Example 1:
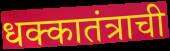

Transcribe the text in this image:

धक्कातंत्राची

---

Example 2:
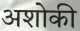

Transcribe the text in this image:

अशोकी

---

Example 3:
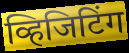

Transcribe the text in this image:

व्हिजिटिंग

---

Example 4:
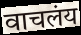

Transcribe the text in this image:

वाचलंय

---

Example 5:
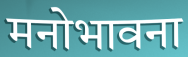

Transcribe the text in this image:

मनोभावना